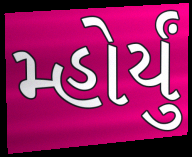
મ્હોર્યું